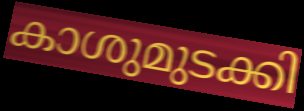
കാശുമുടക്കി